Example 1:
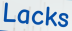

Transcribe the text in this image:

Lacks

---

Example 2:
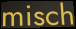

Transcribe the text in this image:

misch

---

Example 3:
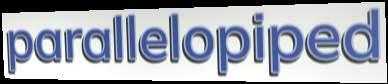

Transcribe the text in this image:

parallelopiped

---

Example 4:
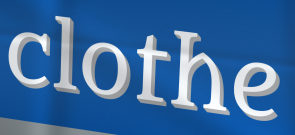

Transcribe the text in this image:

clothe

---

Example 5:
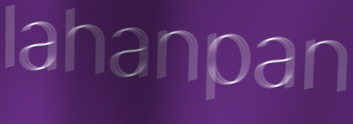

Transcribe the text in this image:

lahanpan